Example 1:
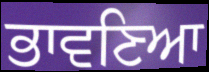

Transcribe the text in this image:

ਭਾਵਣਿਆ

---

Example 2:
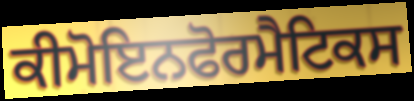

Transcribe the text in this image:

ਕੀਮੋਇਨਫੋਰਮੈਟਿਕਸ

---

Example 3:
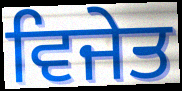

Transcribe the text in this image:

ਵਿਜੇਤ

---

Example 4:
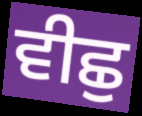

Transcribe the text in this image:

ਵੀਛੁ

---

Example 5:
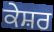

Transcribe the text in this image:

ਕੇਸ਼ਰ